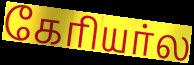
கேரியர்ல